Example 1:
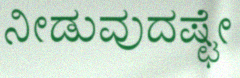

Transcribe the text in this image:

ನೀಡುವುದಷ್ಟೇ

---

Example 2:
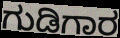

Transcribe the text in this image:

ಗುಡಿಗಾರ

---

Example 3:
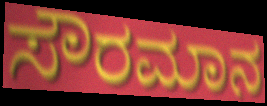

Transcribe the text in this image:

ಸೌರಮಾನ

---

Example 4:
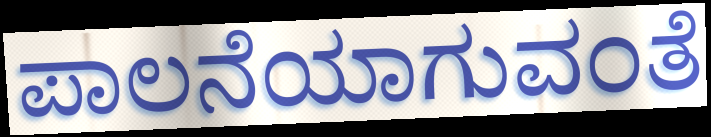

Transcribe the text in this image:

ಪಾಲನೆಯಾಗುವಂತೆ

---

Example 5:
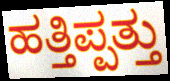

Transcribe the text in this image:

ಹತ್ತಿಪ್ಪತ್ತು